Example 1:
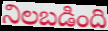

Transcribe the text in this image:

నిలబడింది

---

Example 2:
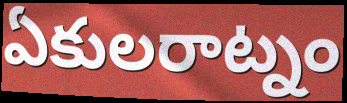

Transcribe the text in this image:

ఏకులరాట్నం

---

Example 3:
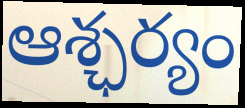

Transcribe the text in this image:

ఆశ్ఛర్యం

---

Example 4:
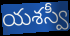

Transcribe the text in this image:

యశస్వీ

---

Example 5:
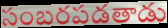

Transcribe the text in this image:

సంబరపడతాడు